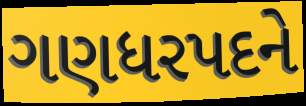
ગણધરપદને